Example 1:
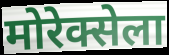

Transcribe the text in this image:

मोरेक्सेला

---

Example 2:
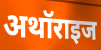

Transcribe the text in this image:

अथॉराइज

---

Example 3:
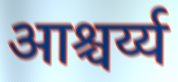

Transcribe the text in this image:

आश्चर्य्य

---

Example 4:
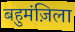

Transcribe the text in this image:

बहुमंज़िला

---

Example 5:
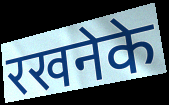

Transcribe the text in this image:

रखनेके